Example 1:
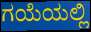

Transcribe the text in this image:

ಗಯೆಯಲ್ಲಿ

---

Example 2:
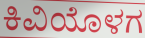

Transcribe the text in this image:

ಕಿವಿಯೊಳಗ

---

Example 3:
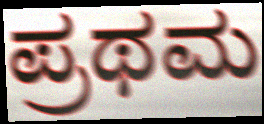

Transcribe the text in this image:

ಪ್ರಥಮ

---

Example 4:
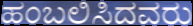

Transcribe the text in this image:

ಹಂಬಲಿಸಿದವರು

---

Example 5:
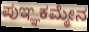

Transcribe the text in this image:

ಪುಞ್ಞಕಮ್ಮೇನ